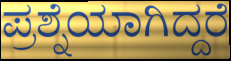
ಪ್ರಶ್ನೆಯಾಗಿದ್ದರೆ